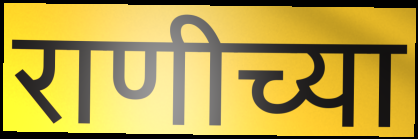
राणीच्या